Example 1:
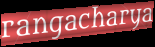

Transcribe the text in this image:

rangacharya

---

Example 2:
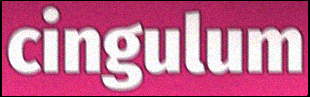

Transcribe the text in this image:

cingulum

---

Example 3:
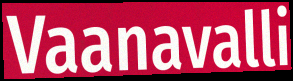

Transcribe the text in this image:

Vaanavalli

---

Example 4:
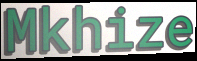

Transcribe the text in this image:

Mkhize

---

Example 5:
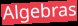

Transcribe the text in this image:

Algebras